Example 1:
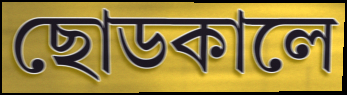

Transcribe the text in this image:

ছোডকালে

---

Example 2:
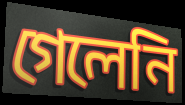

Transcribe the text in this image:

গেলেনি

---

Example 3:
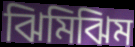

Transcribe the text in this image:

ঝিমিঝিম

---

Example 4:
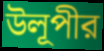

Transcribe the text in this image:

উলূপীর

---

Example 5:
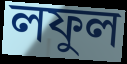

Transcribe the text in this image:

লফুল